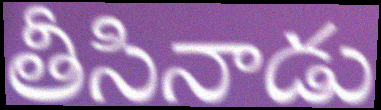
తీసినాడు